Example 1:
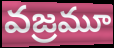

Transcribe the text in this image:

వజ్రమూ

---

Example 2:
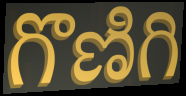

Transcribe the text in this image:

గొణిగి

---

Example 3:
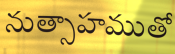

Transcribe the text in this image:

నుత్సాహముతో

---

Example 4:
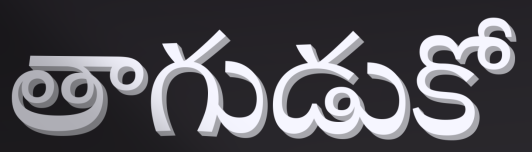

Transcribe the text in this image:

తాగుడుకో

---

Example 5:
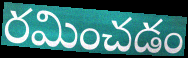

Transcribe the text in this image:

రమించడం